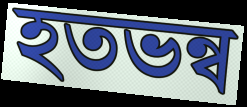
হতভন্ব